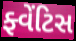
ફ્વેંટિસ